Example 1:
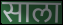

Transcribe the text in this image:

साला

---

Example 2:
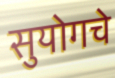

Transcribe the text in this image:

सुयोगचे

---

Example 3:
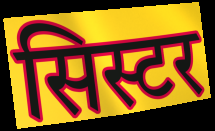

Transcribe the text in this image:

सिस्टर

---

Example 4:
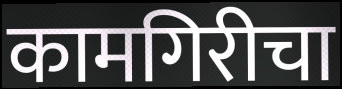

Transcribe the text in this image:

कामगिरीचा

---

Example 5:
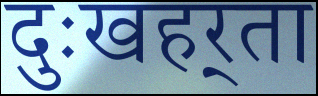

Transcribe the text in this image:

दुःखहर्ता